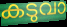
കടുവാ